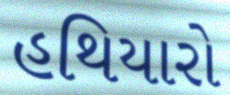
હથિયારો